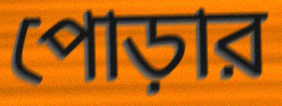
পোড়ার